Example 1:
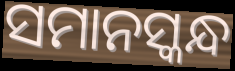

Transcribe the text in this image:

ସମାନସ୍କନ୍ଧ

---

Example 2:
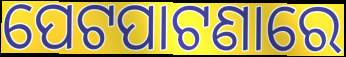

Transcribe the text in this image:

ପେଟପାଟଣାରେ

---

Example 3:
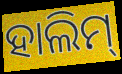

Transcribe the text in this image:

ହାଲିମ୍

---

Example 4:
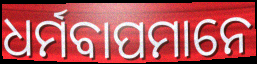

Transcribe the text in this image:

ଧର୍ମବାପମାନେ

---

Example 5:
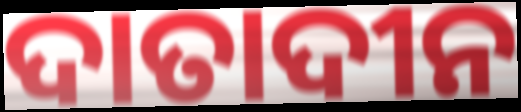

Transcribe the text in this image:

ଦାତାଦୀନ